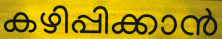
കഴിപ്പിക്കാൻ